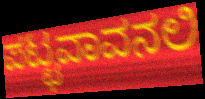
ಪಟ್ಟವಾವನಲಿ